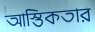
আস্তিকতার